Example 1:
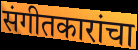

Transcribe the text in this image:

संगीतकारांचा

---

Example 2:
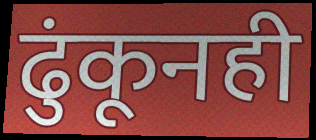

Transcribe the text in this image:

ढुंकूनही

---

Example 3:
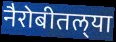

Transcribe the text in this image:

नैरोबीतल्या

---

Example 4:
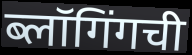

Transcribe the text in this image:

ब्लॉगिंगची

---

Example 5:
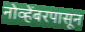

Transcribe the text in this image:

नोव्हेंबरपासून